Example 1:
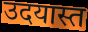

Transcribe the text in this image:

उदयास्त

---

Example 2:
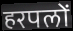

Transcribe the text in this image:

हरपलों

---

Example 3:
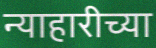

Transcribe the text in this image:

न्याहारीच्या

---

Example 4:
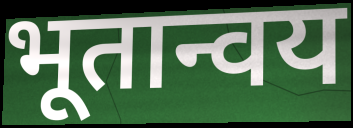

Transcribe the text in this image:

भूतान्वय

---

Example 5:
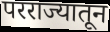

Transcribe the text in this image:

परराज्यातून